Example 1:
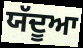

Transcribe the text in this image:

ਯੱਦੂਆ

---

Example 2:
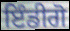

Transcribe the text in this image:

ਇੰਡੀਗੋ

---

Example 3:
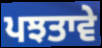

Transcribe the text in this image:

ਪਝਤਾਵੇ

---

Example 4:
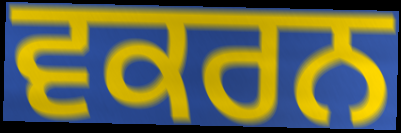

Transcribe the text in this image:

ਵਕਰਨ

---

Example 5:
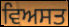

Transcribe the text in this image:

ਵਿਅਸਤ